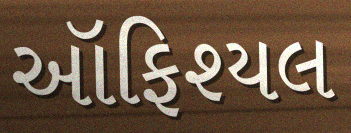
ઑફિશ્યલ